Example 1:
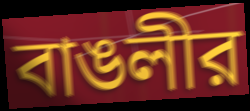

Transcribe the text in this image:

বাঙলীর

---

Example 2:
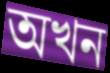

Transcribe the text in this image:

অখন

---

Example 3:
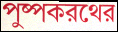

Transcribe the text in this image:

পুষ্পকরথের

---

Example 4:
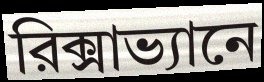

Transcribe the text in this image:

রিক্সাভ্যানে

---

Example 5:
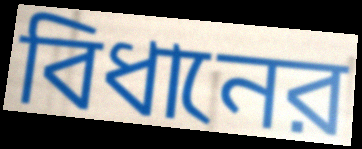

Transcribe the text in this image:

বিধানের